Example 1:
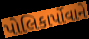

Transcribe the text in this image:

પોલિકાર્પોવાને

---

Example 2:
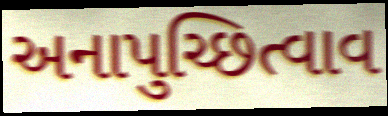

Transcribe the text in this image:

અનાપુચ્છિત્વાવ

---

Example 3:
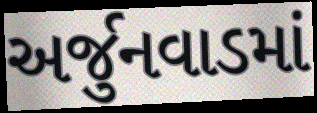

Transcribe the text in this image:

અર્જુનવાડમાં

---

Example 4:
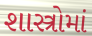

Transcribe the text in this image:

શાસ્ત્રોમાં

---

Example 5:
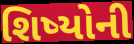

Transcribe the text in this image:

શિષ્યોની